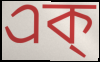
এক্